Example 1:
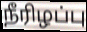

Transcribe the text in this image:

நீரிழப்பு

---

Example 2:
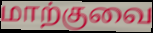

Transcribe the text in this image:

மாற்குவை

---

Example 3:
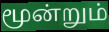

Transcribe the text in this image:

மூன்றும்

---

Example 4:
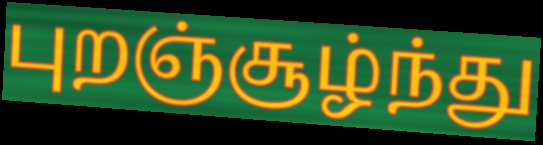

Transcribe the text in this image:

புறஞ்சூழ்ந்து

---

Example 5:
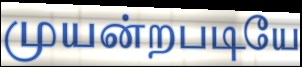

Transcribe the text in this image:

முயன்றபடியே